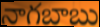
నాగబాబు